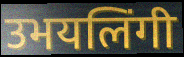
उभयलिंगी